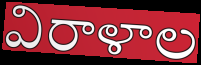
విరాళాల